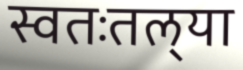
स्वतःतल्या